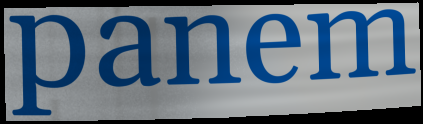
panem